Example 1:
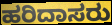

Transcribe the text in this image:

ಹರಿದಾಸರು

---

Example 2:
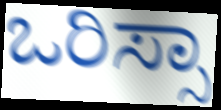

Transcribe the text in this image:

ಒರಿಸ್ಸಾ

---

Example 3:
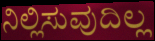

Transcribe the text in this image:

ನಿಲ್ಲಿಸುವುದಿಲ್ಲ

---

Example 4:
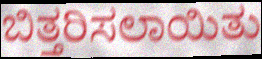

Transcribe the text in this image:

ಬಿತ್ತರಿಸಲಾಯಿತು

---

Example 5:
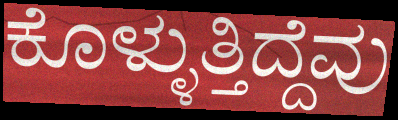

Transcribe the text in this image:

ಕೊಳ್ಳುತ್ತಿದ್ದೆವು